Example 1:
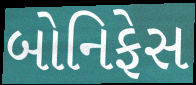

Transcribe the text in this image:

બોનિફેસ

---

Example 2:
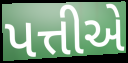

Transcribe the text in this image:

પત્તીએ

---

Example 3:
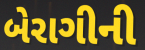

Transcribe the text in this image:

બેરાગીની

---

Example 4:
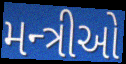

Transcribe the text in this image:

મન્ત્રીઓ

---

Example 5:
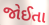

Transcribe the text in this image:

જોઈતા